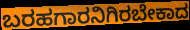
ಬರಹಗಾರನಿಗಿರಬೇಕಾದ